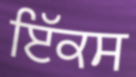
ਇੱਕਸ